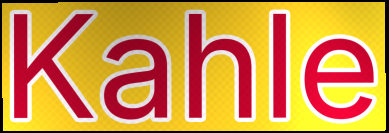
Kahle